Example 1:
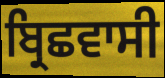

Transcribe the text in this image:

ਬ੍ਰਿਛਵਾਸੀ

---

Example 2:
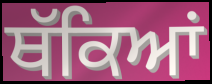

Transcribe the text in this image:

ਥੱਕਿਆਂ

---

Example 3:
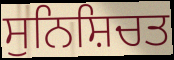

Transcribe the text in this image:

ਸੁਨਿਸ਼ਿਚਤ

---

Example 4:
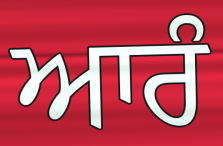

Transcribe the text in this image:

ਆਰੰ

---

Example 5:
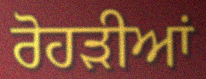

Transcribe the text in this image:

ਰੋਹੜੀਆਂ